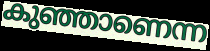
കുഞ്ഞാണെന്ന